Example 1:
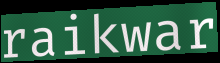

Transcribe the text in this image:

raikwar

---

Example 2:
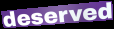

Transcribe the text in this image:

deserved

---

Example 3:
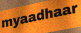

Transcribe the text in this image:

myaadhaar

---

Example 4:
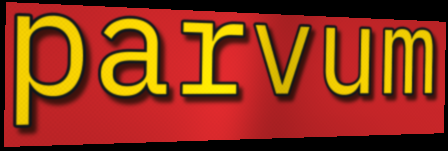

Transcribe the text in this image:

parvum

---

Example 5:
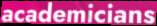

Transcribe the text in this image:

academicians